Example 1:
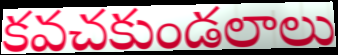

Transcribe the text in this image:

కవచకుండలాలు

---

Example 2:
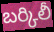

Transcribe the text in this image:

బర్కిలీ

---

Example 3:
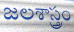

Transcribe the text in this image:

జలశాస్త్రం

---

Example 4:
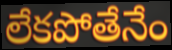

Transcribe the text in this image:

లేకపోతేనేం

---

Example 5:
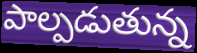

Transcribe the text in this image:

పాల్పడుతున్న